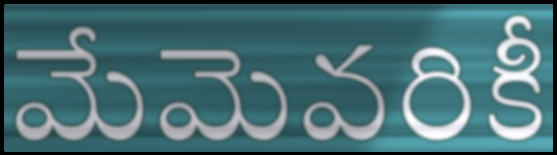
మేమెవరికీ